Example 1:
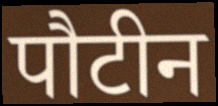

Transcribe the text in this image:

पौटीन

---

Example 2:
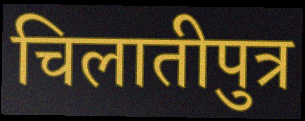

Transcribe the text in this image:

चिलातीपुत्र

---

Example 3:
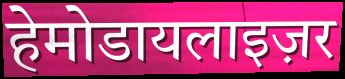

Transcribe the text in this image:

हेमोडायलाइज़र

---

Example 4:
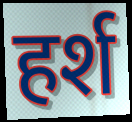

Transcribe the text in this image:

हर्श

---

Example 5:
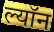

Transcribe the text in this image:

ल्यॉन